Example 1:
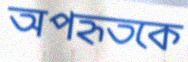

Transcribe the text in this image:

অপহৃতকে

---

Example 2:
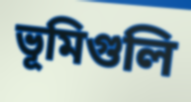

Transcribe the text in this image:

ভূমিগুলি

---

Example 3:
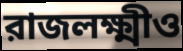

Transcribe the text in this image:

রাজলক্ষ্মীও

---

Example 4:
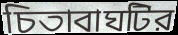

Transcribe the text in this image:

চিতাবাঘটির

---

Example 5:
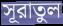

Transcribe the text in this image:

সূরাতুল